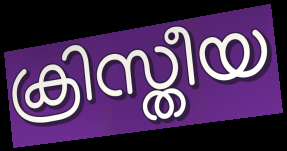
ക്രിസ്തീയ